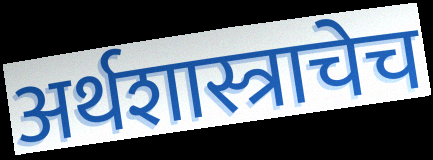
अर्थशास्त्राचेच